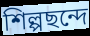
শিল্পছন্দে